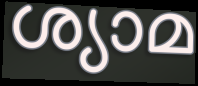
ശ്യാമ